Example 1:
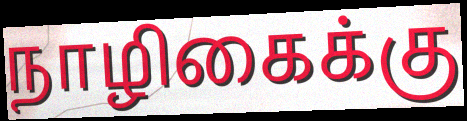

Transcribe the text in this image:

நாழிகைக்கு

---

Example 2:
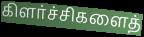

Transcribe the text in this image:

கிளர்ச்சிகளைத்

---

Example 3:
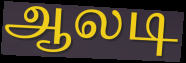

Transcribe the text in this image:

ஆலடி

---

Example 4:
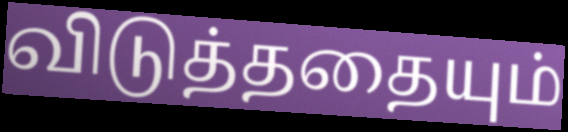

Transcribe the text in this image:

விடுத்ததையும்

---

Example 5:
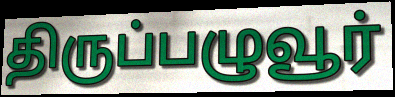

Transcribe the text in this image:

திருப்பழுவூர்